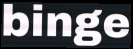
binge